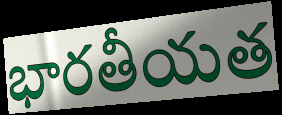
భారతీయత